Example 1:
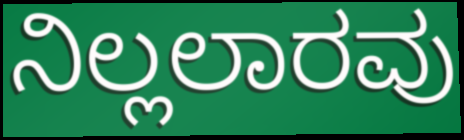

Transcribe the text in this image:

ನಿಲ್ಲಲಾರವು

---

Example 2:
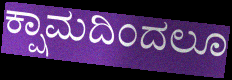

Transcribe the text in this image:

ಕ್ಷಾಮದಿಂದಲೂ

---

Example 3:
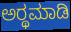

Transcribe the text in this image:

ಅರ್‍ಥಮಾಡಿ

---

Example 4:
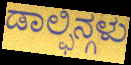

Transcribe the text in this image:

ಡಾಲ್ಫಿನ್ಗಳು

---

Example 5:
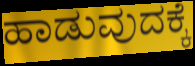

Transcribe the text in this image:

ಹಾಡುವುದಕ್ಕೆ